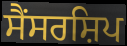
ਸੈਂਸਰਸ਼ਿਪ